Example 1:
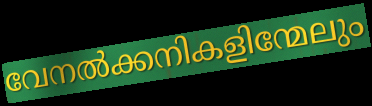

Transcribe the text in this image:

വേനൽക്കനികളിന്മേലും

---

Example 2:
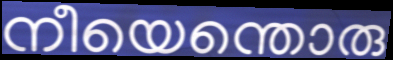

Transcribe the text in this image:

നീയെന്തൊരു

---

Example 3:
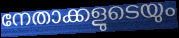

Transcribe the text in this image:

നേതാക്കളുടെയും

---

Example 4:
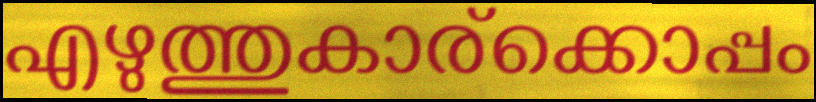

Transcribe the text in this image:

എഴുത്തുകാര്ക്കൊപ്പം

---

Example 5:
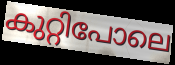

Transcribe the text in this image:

കുറ്റിപോലെ